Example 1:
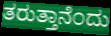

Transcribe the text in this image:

ತರುತ್ತಾನೆಂದು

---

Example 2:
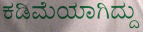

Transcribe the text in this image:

ಕಡಿಮೆಯಾಗಿದ್ದು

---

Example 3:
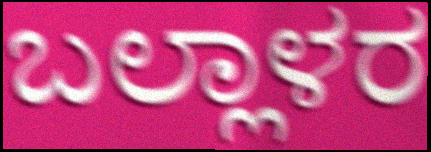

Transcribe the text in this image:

ಬಲ್ಲಾಳರ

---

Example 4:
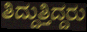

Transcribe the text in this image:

ತಿದ್ದುತ್ತಿದ್ದರು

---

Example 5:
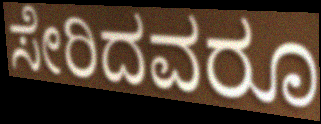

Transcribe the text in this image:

ಸೇರಿದವರೂ